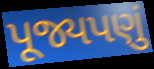
પૂજ્યપણું